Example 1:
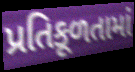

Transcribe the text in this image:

પ્રતિકૂળતામાં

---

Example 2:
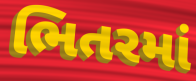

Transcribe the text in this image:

ભિતરમાં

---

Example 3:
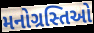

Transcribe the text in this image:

મનોગ્રસ્તિઓ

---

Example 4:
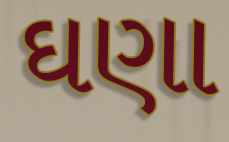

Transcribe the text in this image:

ઘણા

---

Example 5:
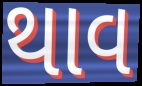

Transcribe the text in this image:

થાવ